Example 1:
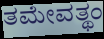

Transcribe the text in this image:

ತಮೇವತ್ಥಂ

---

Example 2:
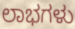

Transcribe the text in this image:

ಲಾಭಗಳು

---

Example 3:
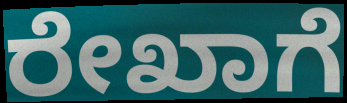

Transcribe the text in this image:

ರೇಖಾಗೆ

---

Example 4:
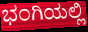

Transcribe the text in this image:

ಭಂಗಿಯಲ್ಲಿ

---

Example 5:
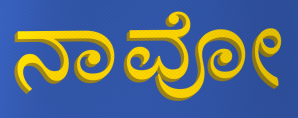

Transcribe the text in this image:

ನಾವೋ